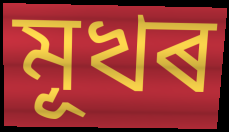
মূখৰ